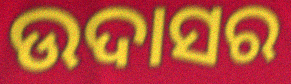
ଉଦାସର